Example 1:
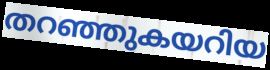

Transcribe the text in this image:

തറഞ്ഞുകയറിയ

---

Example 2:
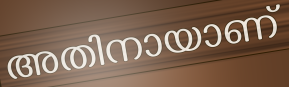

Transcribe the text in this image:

അതിനായാണ്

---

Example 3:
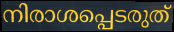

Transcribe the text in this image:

നിരാശപ്പെടരുത്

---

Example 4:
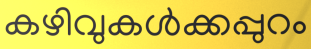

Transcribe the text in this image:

കഴിവുകൾക്കപ്പുറം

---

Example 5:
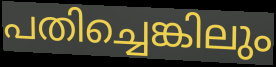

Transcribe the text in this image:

പതിച്ചെങ്കിലും